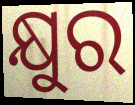
କ୍ଷୁର